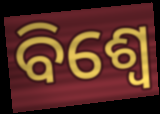
ବିଶ୍ଵେ